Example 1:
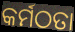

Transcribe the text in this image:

କର୍ମଠତା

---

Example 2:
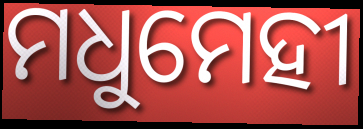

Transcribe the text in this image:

ମଧୁମେହୀ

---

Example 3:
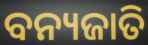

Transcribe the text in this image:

ବନ୍ୟଜାତି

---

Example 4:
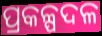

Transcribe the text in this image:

ପ୍ରକଳ୍ପଦଳ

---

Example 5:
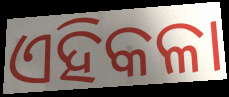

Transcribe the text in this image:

ଏହିକଳା